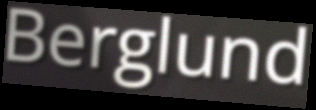
Berglund